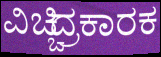
ವಿಚ್ಚಿದ್ರಕಾರಕ